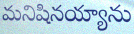
మనిషినయ్యాను